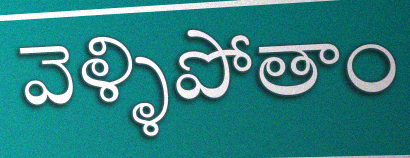
వెళ్ళిపోతాం